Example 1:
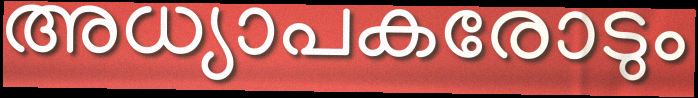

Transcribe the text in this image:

അധ്യാപകരോടും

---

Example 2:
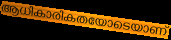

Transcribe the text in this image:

ആധികാരികതയോടെയാണ്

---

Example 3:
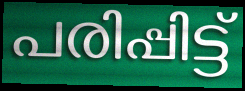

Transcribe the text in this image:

പരിപ്പിട്ട്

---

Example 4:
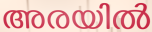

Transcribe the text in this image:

അരയിൽ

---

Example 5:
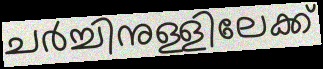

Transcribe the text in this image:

ചർച്ചിനുള്ളിലേക്ക്